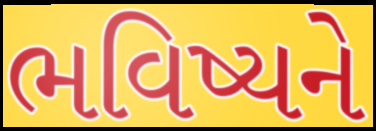
ભવિષ્યને